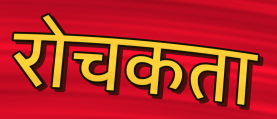
रोचकता